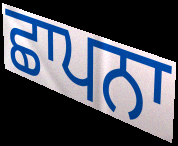
ਛਾਪਨਾ